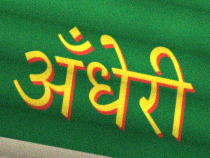
अँधेरी